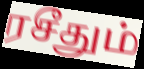
ரசீதும்